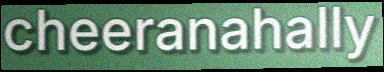
cheeranahally